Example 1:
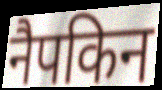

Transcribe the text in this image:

नैपकिन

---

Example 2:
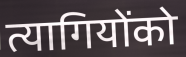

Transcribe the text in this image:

त्यागियोंको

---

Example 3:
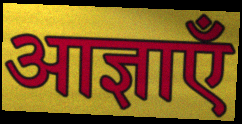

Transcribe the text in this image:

आज्ञाएँ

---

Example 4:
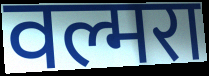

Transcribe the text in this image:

वल्मरा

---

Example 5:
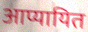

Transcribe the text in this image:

आप्यायित